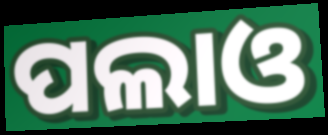
ପଲାଓ